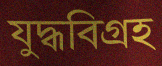
যুদ্ধবিগ্রহ